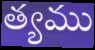
త్యము